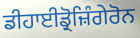
ਡੀਹਾਈਡ੍ਰੋਜ਼ਿੰਗੇਰੋਨ